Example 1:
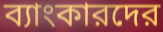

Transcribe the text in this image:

ব্যাংকারদের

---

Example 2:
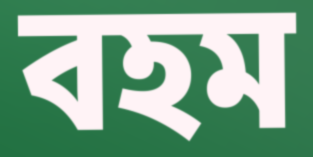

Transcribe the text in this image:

বহম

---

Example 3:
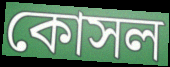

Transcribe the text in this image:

কোসল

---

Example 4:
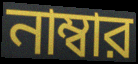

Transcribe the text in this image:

নাম্বার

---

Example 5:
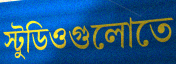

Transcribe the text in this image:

স্টুডিওগুলোতে